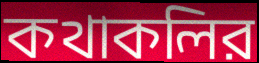
কথাকলির